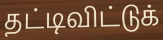
தட்டிவிட்டுக்